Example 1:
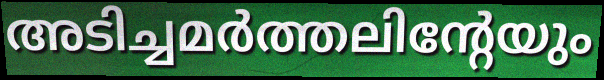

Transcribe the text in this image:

അടിച്ചമർത്തലിന്റേയും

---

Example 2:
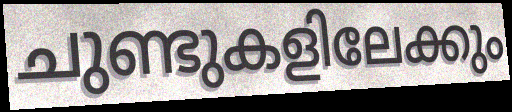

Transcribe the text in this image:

ചുണ്ടുകളിലേക്കും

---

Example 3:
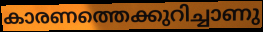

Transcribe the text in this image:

കാരണത്തെക്കുറിച്ചാണു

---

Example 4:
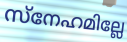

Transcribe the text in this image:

സ്നേഹമില്ലേ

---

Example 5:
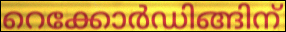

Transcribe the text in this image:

റെക്കോർഡിങ്ങിന്